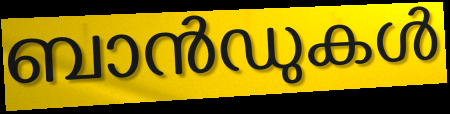
ബാൻഡുകൾ